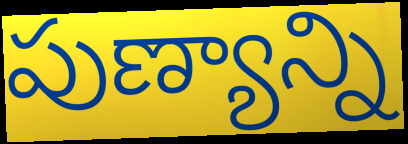
పుణ్యాన్ని